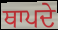
ਥਾਪਦੇ